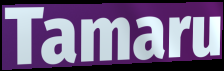
Tamaru